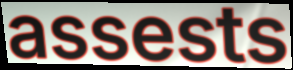
assests